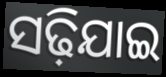
ସଢ଼ିଯାଇ